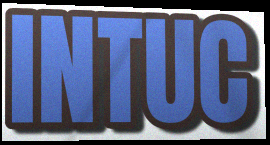
INTUC